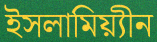
ইসলামিয়্যীন